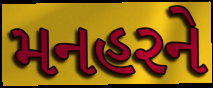
મનહરને